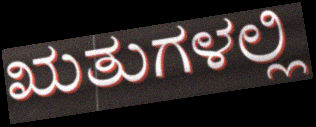
ಋತುಗಳಲ್ಲಿ